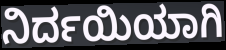
ನಿರ್ದಯಿಯಾಗಿ